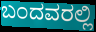
ಬಂದವರಲ್ಲಿ